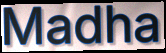
Madha